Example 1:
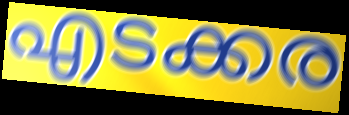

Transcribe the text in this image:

എടക്കര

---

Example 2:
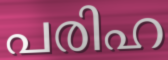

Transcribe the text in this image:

പരിഹ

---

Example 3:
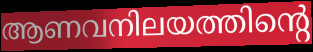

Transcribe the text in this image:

ആണവനിലയത്തിന്റെ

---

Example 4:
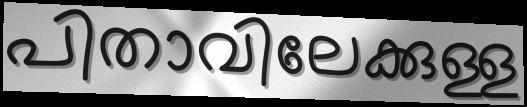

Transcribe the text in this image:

പിതാവിലേക്കുള്ള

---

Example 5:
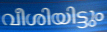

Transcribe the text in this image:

വീശിയിട്ടും